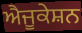
ਐਜੂਕੇਸ਼ਨ